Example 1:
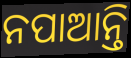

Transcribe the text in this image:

ନପାଆନ୍ତି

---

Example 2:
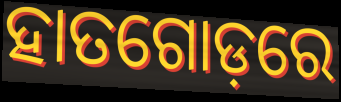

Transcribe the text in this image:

ହାତଗୋଡ଼ରେ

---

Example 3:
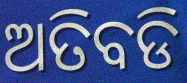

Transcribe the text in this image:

ଅତିବଡି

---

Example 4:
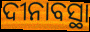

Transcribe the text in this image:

ଦୀନାବସ୍ଥା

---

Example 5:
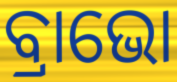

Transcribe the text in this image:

ବ୍ରାଭୋ